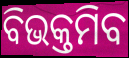
ବିଭକ୍ତମିବ